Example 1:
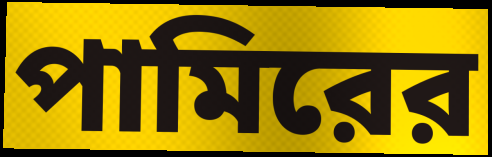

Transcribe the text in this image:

পামিরের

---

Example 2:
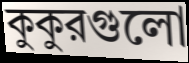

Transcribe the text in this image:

কুকুরগুলো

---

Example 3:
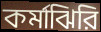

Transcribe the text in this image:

কর্মাঝিরি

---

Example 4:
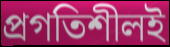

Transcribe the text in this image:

প্রগতিশীলই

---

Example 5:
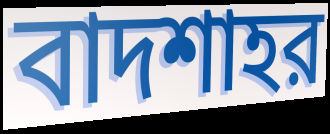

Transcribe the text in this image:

বাদশাহর